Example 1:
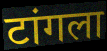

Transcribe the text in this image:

टांगला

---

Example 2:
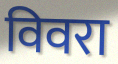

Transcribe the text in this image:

विवरा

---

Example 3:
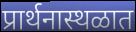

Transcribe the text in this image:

प्रार्थनास्थळात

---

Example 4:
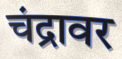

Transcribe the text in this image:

चंद्रावर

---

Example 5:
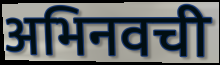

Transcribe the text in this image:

अभिनवची